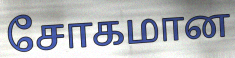
சோகமான